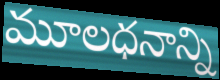
మూలధనాన్ని